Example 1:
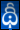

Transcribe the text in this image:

థీ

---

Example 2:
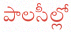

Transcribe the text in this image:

పాలసీల్లో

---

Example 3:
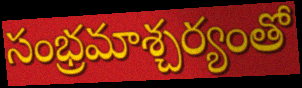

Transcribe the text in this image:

సంభ్రమాశ్చర్యంతో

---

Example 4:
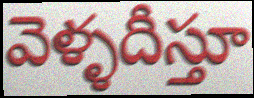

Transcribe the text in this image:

వెళ్ళదీస్తూ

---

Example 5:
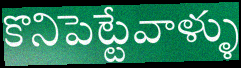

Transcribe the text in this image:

కొనిపెట్టేవాళ్ళు